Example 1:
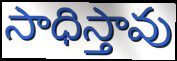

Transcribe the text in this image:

సాధిస్తావు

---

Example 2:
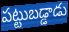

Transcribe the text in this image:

పట్టుబడ్డాడు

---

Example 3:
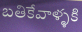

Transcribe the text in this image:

బతికేవాళ్ళకి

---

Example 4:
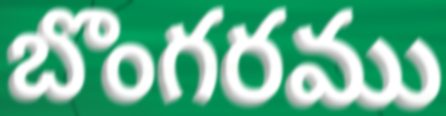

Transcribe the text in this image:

బొంగరము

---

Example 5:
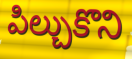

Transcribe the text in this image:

పిల్చుకొని